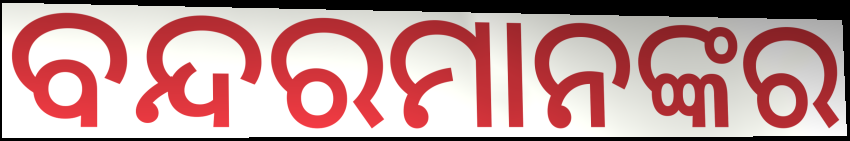
ବନ୍ଦରମାନଙ୍କର